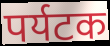
पर्यटक